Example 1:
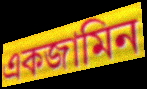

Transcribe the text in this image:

একজামিন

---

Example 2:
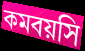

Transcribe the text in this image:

কমবয়সি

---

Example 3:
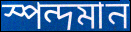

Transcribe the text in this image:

স্পন্দমান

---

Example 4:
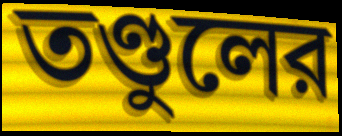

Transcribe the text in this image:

তণ্ডুলের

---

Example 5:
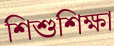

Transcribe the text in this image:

শিশুশিক্ষা